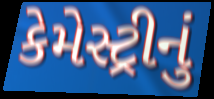
કેમેસ્ટ્રીનું